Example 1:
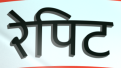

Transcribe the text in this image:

रेपिट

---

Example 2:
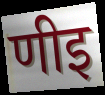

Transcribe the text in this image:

णीइ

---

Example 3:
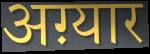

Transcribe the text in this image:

अग़्यार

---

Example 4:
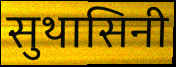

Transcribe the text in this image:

सुथासिनी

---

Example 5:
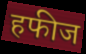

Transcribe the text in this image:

हफीज